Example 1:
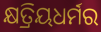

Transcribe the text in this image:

କ୍ଷତ୍ରିୟଧର୍ମର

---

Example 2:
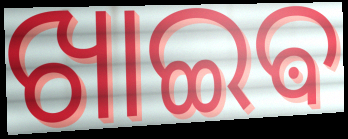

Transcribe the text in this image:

ଖାଇଵ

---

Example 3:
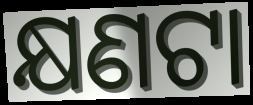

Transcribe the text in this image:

କ୍ଷଣଟା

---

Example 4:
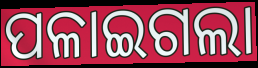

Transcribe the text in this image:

ପଳାଇଗଲା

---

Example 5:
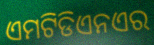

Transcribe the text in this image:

ଏମଟିଡିଏନଏର